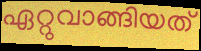
ഏറ്റുവാങ്ങിയത്